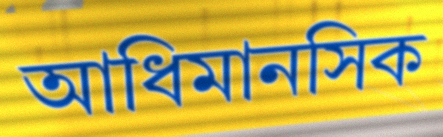
আধিমানসিক